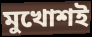
মুখোশই